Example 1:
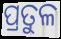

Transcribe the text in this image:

ପ୍ରତୁଳ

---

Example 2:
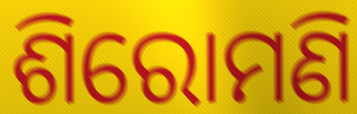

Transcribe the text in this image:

ଶିରୋମଣି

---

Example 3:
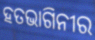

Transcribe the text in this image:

ହତଭାଗିନୀର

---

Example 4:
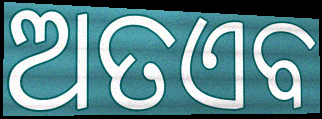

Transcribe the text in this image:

ଅତଏବ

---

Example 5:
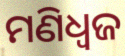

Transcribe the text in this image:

ମଣିଧ୍ୱଜ